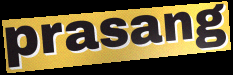
prasang